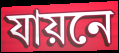
যায়নে